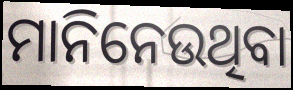
ମାନିନେଉଥିବା